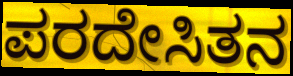
ಪರದೇಸಿತನ